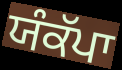
ਯੰਕੱਪਾ